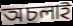
অচলাই